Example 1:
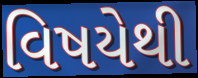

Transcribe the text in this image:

વિષયેથી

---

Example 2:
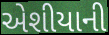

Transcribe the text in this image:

એશીયાની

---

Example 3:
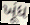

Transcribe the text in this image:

ખૂંધ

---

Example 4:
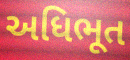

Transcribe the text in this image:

અધિભૂત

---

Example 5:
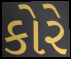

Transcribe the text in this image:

કોરે